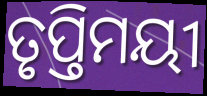
ତୃପ୍ତିମୟୀ